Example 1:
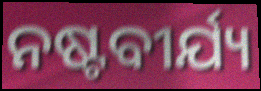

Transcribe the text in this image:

ନଷ୍ଟବୀର୍ଯ୍ୟ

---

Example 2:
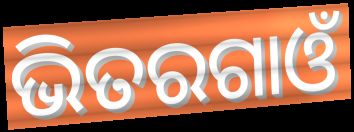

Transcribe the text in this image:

ଭିତରଗାଓଁ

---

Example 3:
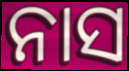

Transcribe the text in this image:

ନାସ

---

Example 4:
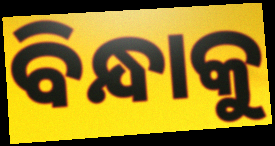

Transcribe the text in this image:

ବିନ୍ଧାକୁ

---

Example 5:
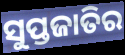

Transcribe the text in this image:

ସୁପ୍ତଜାତିର